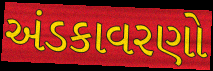
અંડકાવરણો